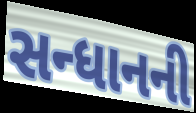
સન્ધાનની